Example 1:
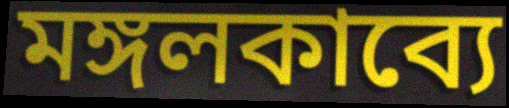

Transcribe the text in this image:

মঙ্গলকাব্যে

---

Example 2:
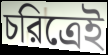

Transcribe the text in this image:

চরিত্রেই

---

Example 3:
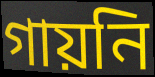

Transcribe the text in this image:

গায়নি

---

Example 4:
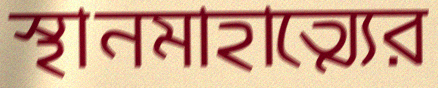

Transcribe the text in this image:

স্থানমাহাত্ম্যের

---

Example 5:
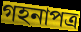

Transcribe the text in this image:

গহনাপত্র